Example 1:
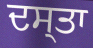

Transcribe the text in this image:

ਦਸ੍ਤਾ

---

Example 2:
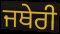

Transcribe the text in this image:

ਜਥੇਰੀ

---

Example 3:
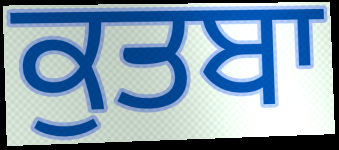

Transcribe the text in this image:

ਕੁਤਬਾ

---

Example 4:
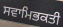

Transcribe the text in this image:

ਸਵਾਮਿਭਕਤੀ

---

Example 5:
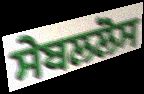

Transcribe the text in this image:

ਸੇਬਲਲੋਸ